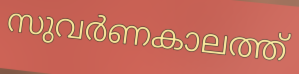
സുവർണകാലത്ത്